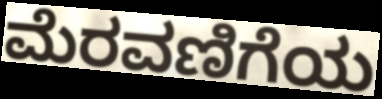
ಮೆರವಣಿಗೆಯ